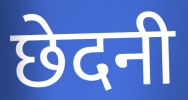
छेदनी